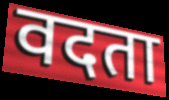
वदता